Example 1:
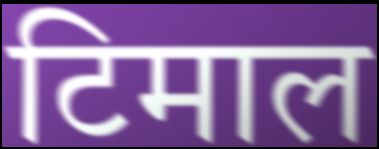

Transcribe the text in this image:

टिमाल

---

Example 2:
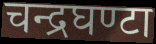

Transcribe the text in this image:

चन्द्रघण्टा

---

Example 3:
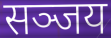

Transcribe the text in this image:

सञ्जय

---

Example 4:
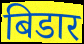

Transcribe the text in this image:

बिडार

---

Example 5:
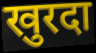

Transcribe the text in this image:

खुरदा